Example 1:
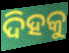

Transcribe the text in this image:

ଦିହକୁ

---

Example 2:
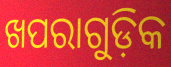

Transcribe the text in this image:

ଖପରାଗୁଡ଼ିକ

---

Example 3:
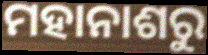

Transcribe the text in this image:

ମହାନାଶରୁ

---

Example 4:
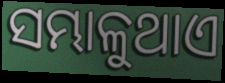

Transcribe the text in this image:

ସମ୍ଭାଳୁଥାଏ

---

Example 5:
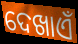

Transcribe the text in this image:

ଦେଖାଏଁ